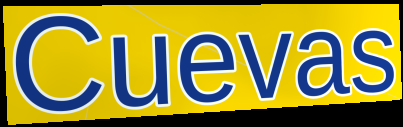
Cuevas